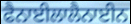
ਫੈਨਾਈਲਾਲੈਨਾਈਨ